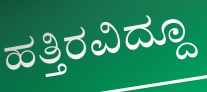
ಹತ್ತಿರವಿದ್ದೂ